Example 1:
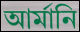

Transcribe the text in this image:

আর্মানি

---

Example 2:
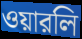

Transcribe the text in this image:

ওয়ারলি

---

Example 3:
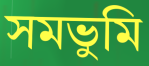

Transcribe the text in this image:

সমভুমি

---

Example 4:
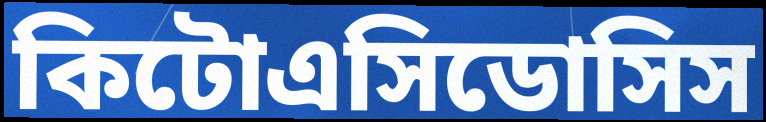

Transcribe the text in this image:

কিটোএসিডোসিস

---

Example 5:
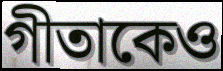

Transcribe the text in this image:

গীতাকেও